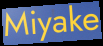
Miyake